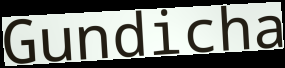
Gundicha